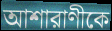
আশারাণীকে